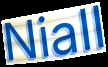
Niall